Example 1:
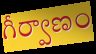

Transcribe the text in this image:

గీర్వాణం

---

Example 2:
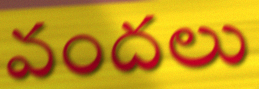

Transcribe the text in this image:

వందలు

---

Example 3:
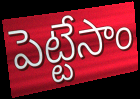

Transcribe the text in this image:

పెట్టేసాం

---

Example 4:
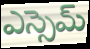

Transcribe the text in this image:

ఎస్సెమ్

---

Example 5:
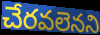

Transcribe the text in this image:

చేరవలెనని